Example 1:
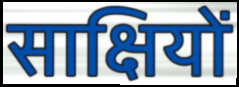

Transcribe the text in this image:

साक्षियों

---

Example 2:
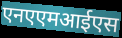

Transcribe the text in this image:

एनएएमआईएस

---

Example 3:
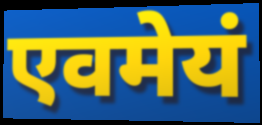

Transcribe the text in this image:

एवमेयं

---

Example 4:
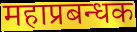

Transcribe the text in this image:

महाप्रबन्धक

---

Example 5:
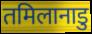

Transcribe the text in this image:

तमिलानाडु